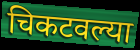
चिकटवल्या